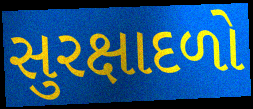
સુરક્ષાદળો